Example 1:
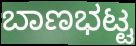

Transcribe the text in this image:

ಬಾಣಭಟ್ಟ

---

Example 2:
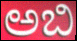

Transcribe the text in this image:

ಅಬಿ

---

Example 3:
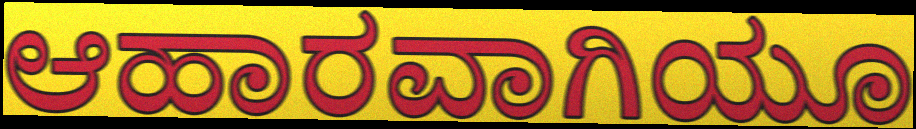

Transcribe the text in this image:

ಆಹಾರವಾಗಿಯೂ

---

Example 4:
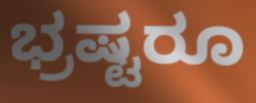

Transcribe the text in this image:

ಭ್ರಷ್ಟರೂ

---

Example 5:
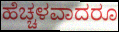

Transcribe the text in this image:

ಹೆಚ್ಚಳವಾದರೂ